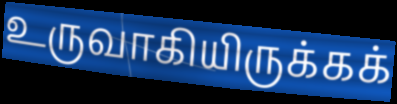
உருவாகியிருக்கக்